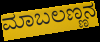
ಮಾಬಲಣ್ಣನ